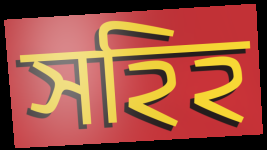
সহিহ